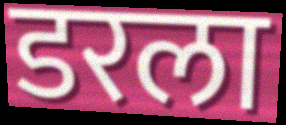
डरला